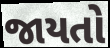
જાયતો